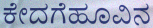
ಕೇದಗೆಹೂವಿನ